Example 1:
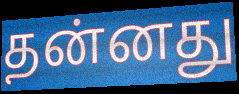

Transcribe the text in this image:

தன்னது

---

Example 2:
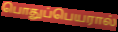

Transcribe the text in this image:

பொதுப்பெயரால்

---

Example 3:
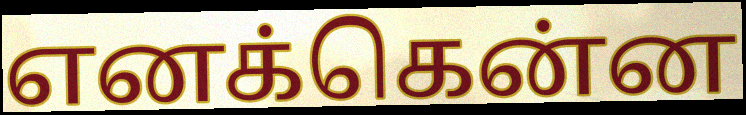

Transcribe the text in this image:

எனக்கென்ன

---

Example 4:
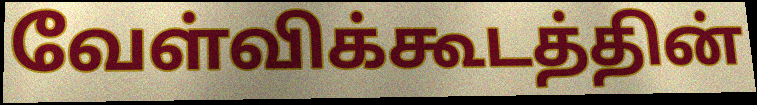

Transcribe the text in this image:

வேள்விக்கூடத்தின்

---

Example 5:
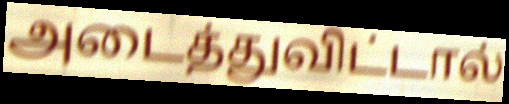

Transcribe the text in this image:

அடைத்துவிட்டால்